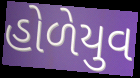
હોળેયુવ